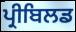
ਪ੍ਰੀਬਿਲਡ